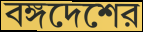
বঙ্গদেশের